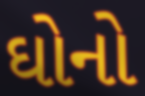
ઘોનો